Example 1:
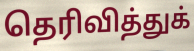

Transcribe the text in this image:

தெரிவித்துக்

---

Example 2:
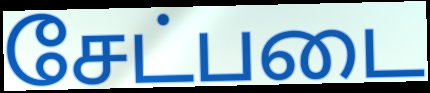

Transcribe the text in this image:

சேட்படை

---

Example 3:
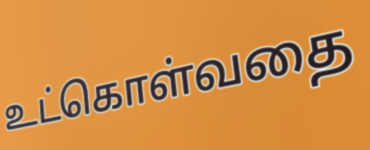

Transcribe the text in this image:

உட்கொள்வதை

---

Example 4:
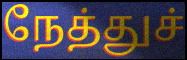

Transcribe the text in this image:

நேத்துச்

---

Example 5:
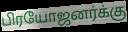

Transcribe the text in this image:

பிரயோஜனர்க்கு